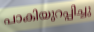
പാകിയുറപ്പിച്ചു